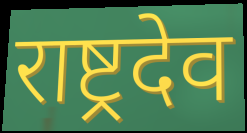
राष्ट्रदेव